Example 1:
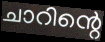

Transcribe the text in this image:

ചാറിന്റെ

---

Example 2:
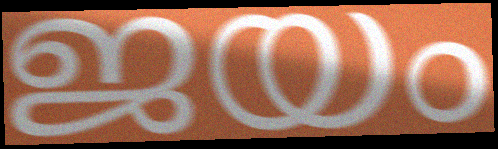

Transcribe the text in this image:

ജയം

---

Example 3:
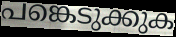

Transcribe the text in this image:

പങ്കെടുക്കുക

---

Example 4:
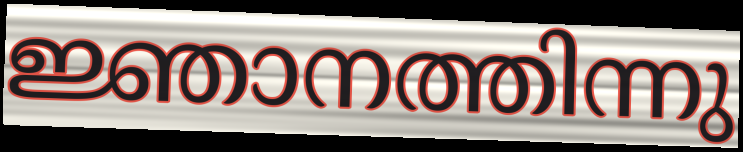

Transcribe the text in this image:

ജ്ഞാനത്തിന്നു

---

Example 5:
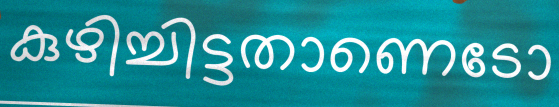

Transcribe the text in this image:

കുഴിച്ചിട്ടതാണെടോ